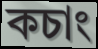
কচাং